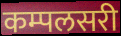
कम्पलसरी